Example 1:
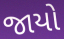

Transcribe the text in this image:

જાયો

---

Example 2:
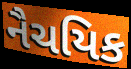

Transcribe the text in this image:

નૈચયિક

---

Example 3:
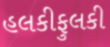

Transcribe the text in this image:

હલકીફુલકી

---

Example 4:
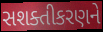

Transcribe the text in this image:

સશક્તીકરણને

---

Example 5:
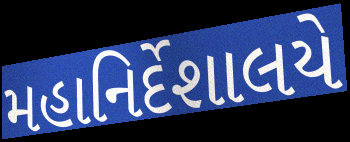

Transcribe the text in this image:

મહાનિર્દેશાલયે